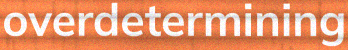
overdetermining